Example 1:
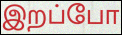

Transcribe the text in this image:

இறப்போ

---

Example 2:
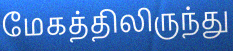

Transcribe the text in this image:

மேகத்திலிருந்து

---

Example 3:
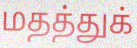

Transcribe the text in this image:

மதத்துக்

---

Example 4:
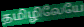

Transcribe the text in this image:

தமிழிலேயே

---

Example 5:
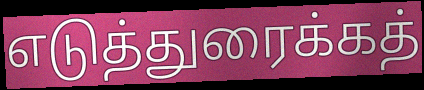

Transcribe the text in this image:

எடுத்துரைக்கத்